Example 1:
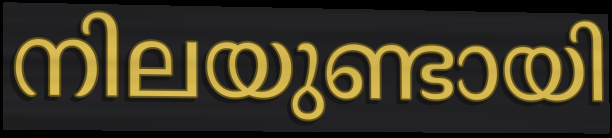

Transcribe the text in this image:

നിലയുണ്ടായി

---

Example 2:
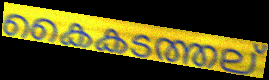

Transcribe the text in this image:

കൈകടത്തല്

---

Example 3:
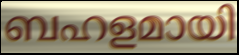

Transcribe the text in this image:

ബഹളമായി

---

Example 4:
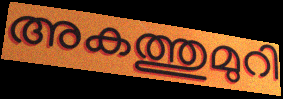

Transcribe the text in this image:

അകത്തുമുറി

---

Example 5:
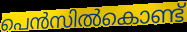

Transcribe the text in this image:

പെൻസിൽകൊണ്ട്